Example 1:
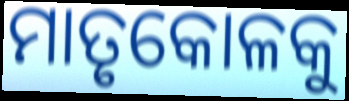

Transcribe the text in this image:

ମାତୃକୋଳକୁ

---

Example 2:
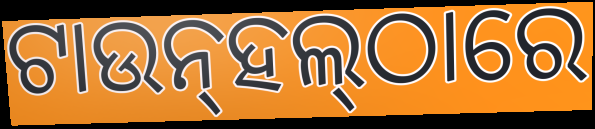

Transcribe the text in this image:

ଟାଉନ୍‌ହଲ୍‌ଠାରେ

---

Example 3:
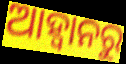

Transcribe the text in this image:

ଆହ୍ବାନରୁ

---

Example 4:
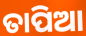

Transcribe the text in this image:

ତାପିଆ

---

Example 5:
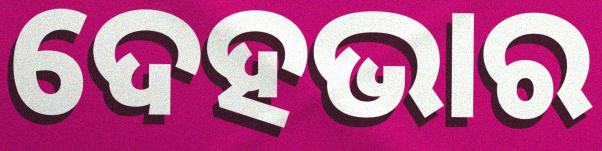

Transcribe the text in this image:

ଦେହଭାର